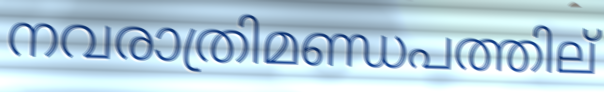
നവരാത്രിമണ്ഡപത്തില്